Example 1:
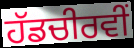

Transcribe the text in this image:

ਹੱਡਚੀਰਵੀਂ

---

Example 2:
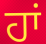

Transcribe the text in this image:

ਹਾਂ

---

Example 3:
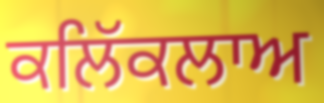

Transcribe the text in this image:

ਕਲਿੱਕਲਾਅ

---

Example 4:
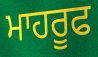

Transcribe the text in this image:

ਮਾਹਰੂਫ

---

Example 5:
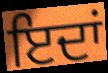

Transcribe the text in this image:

ਇਦਾਂ